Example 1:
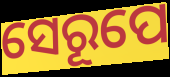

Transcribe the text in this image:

ସେରୂପେ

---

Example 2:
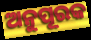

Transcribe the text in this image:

ଅନୁପୂରକ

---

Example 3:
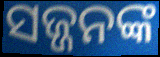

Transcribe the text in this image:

ସଜ୍ଜନଙ୍କ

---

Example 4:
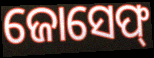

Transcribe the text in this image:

ଜୋସେଫ୍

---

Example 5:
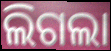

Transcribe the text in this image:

ଲିଗଲା